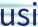
usi